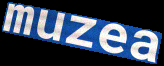
muzea